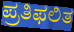
ಪ್ರತಿಫಲಿತ